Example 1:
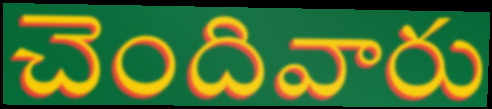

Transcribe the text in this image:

చెందివారు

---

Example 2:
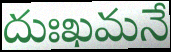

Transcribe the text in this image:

దుఃఖమనే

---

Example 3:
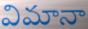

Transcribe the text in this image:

విమానా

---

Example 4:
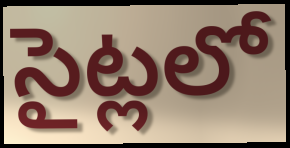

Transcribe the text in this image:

సైట్లలో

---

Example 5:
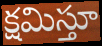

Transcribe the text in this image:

క్షమిస్తూ